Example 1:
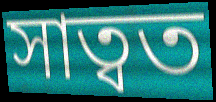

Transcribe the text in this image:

সাত্বত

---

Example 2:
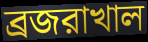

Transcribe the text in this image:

ব্রজরাখাল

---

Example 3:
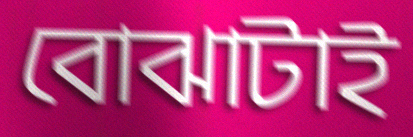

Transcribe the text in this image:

বোঝাটাই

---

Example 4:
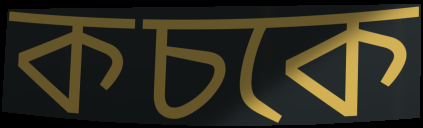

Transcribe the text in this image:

কচকে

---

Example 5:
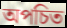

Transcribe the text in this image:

অপচিত